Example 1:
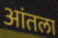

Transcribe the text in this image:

आंतला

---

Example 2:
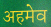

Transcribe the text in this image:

अहमेव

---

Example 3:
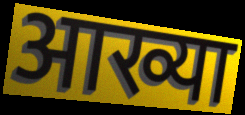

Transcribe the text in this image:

आख्या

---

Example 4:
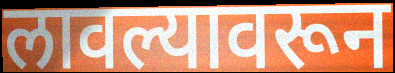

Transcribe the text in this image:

लावल्यावरून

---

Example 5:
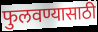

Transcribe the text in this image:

फुलवण्यासाठी